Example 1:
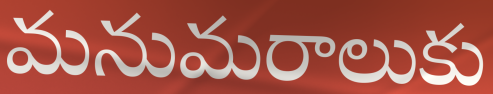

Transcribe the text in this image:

మనుమరాలుకు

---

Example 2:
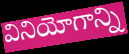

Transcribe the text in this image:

వినియోగాన్ని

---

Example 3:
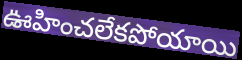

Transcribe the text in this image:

ఊహించలేకపోయాయి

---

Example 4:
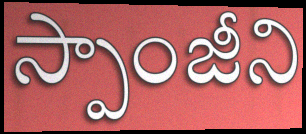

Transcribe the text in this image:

స్పాంజీని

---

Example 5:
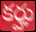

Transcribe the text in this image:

కర్హు